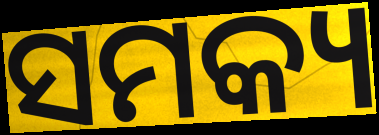
ସମକ୍ୟ